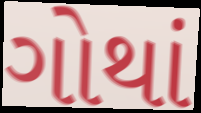
ગોથાં